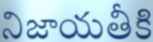
నిజాయతీకి